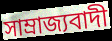
সাম্ৰাজ্যবাদী